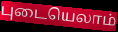
புடையெலாம்